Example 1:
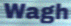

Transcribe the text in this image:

Wagh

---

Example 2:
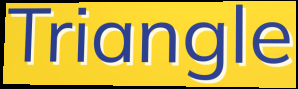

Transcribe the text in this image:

Triangle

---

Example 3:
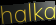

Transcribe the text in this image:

halka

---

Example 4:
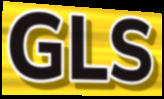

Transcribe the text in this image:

GLS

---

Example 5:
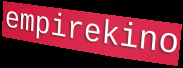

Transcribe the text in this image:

empirekino